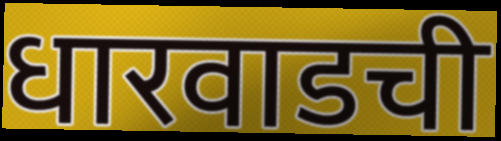
धारवाडची